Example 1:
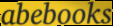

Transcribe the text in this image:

abebooks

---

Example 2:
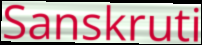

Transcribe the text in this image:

Sanskruti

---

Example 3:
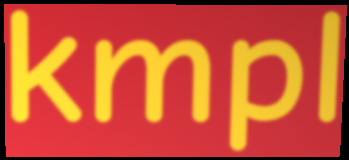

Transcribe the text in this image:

kmpl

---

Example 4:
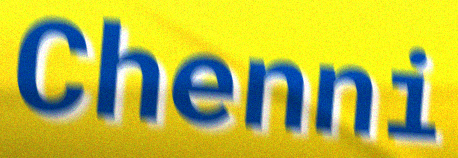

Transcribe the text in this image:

Chenni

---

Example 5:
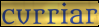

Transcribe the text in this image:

curriar